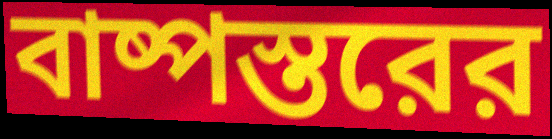
বাষ্পস্তরের